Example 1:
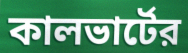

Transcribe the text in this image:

কালভার্টের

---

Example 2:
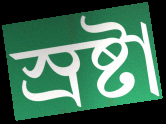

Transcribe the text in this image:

স্রষ্টা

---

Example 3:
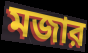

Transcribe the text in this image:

মজার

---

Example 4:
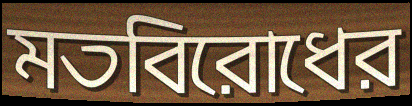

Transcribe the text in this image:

মতবিরোধের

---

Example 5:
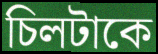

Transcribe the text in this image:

চিলটাকে